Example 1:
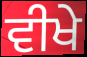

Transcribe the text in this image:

ਵੀਖੇ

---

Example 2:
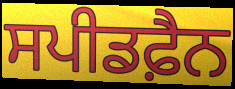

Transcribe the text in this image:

ਸਪੀਡਫ਼ੈਨ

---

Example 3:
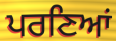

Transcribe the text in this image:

ਪਰਣਿਆਂ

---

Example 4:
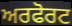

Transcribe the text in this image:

ਅਰਫੋਰਟ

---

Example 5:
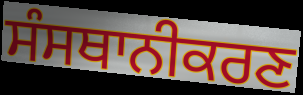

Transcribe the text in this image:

ਸੰਸਥਾਨੀਕਰਣ